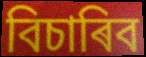
বিচাৰিব